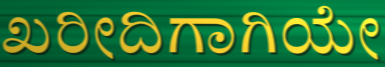
ಖರೀದಿಗಾಗಿಯೇ